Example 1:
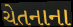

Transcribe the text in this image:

ચેતનાના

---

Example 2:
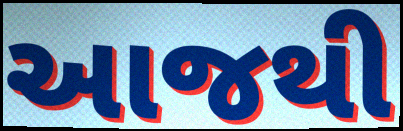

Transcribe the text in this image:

આજથી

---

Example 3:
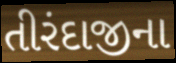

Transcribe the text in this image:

તીરંદાજીના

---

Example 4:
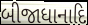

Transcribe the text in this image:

બીજાધાનાદિ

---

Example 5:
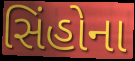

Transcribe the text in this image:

સિંહોના